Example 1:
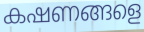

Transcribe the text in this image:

കഷണങ്ങളെ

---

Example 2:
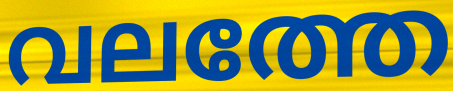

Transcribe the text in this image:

വലത്തേ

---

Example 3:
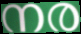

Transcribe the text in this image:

നര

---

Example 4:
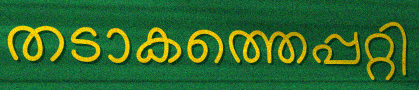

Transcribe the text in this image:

തടാകത്തെപ്പറ്റി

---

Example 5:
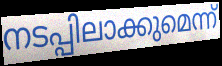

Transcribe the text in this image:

നടപ്പിലാക്കുമെന്ന്